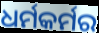
ଧର୍ମକର୍ମର